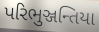
પરિભુઞ્જન્તિયા